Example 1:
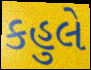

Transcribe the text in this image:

કહુલે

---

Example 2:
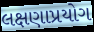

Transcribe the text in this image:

લક્ષણાપ્રયોગ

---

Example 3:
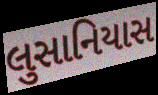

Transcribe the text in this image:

લુસાનિયાસ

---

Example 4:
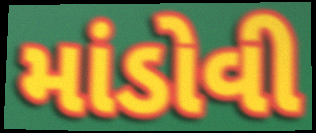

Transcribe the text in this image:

માંડોવી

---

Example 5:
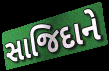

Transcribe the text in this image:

સાજિદાને